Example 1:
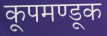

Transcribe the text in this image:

कूपमण्डूक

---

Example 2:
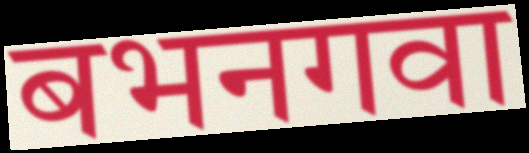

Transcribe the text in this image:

बभनगवा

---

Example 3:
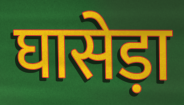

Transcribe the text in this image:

घासेड़ा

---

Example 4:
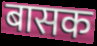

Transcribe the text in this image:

बासक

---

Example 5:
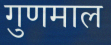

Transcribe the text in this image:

गुणमाल